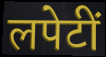
लपेटीं